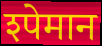
श्पेमान